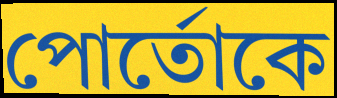
পোর্তোকে